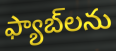
ఫ్యాబ్‌లను